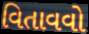
વિતાવવો